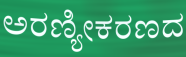
ಅರಣ್ಯೀಕರಣದ